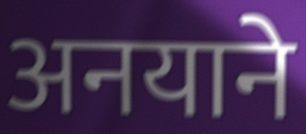
अनयाने